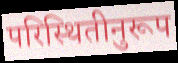
परिस्थितीनुरूप